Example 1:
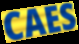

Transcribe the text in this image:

CAES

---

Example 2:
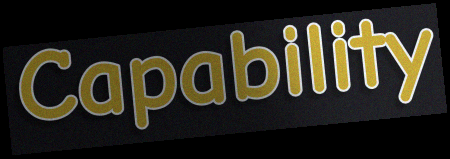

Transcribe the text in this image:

Capability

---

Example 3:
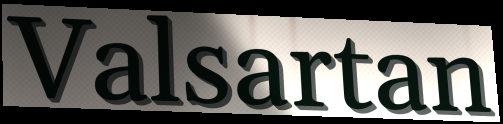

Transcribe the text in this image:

Valsartan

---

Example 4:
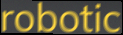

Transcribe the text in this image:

robotic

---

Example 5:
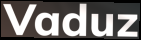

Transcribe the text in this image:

Vaduz